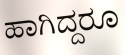
ಹಾಗಿದ್ದರೂ